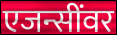
एजन्सींवर